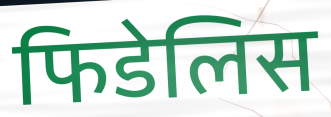
फिडेलिस